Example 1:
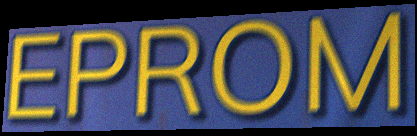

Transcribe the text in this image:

EPROM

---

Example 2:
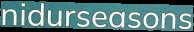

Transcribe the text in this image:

nidurseasons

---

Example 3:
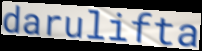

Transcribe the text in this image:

darulifta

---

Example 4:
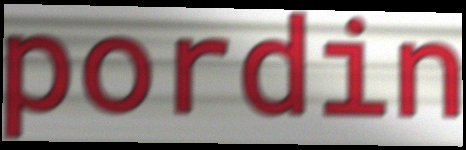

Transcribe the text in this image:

pordin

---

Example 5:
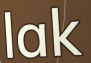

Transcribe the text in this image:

lak